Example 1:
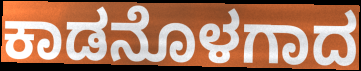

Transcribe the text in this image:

ಕಾಡನೊಳಗಾದ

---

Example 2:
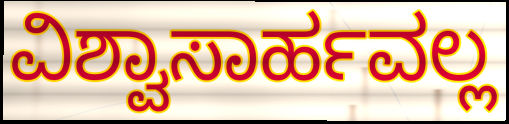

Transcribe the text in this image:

ವಿಶ್ವಾಸಾರ್ಹವಲ್ಲ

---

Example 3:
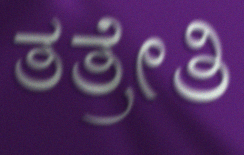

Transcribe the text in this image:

ತತ್ರೇತಿ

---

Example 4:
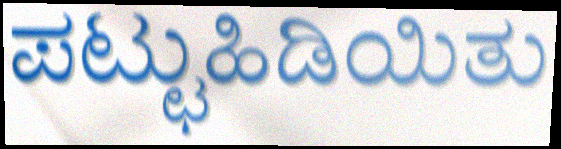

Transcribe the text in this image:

ಪಟ್ಟುಹಿಡಿಯಿತು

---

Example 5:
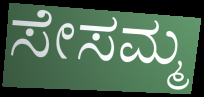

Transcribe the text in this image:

ಸೇಸಮ್ಮ